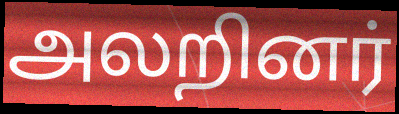
அலறினர்